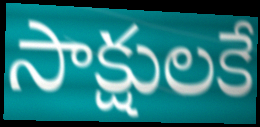
సాక్షులకే